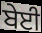
ਬੇਈ